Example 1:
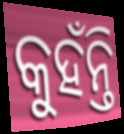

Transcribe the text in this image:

କୁହଁନ୍ତି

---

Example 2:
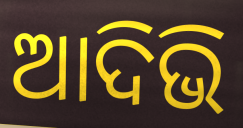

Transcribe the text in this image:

ଆଦିଭି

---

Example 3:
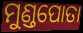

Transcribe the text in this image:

ମୁଣ୍ଡପୋତା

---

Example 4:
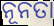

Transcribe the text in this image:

ନୂନତା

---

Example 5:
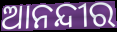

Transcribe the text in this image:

ଆନନ୍ଦୀର